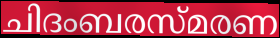
ചിദംബരസ്മരണ